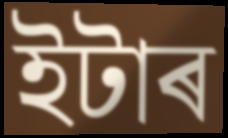
ইটাৰ